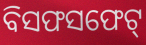
ବିସଫସଫେଟ୍